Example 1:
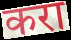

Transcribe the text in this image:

करा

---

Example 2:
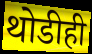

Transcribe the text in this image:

थोडीही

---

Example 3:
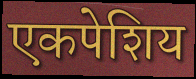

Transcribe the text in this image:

एकपेशिय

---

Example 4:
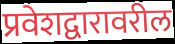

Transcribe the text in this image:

प्रवेशद्वारावरील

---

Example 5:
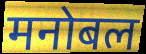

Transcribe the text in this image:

मनोबल